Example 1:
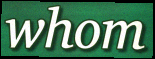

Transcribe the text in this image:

whom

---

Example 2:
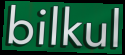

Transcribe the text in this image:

bilkul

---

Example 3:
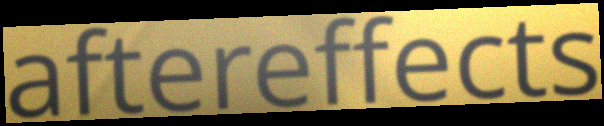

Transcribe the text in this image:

aftereffects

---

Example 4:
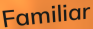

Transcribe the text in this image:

Familiar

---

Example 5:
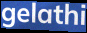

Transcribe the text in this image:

gelathi